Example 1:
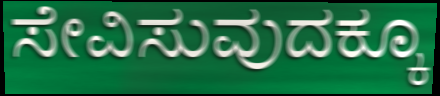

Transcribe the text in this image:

ಸೇವಿಸುವುದಕ್ಕೂ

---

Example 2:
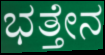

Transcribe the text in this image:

ಭತ್ತೇನ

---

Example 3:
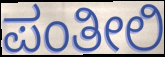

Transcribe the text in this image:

ಪಂತೀಲಿ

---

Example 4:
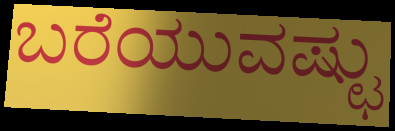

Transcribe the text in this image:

ಬರೆಯುವಷ್ಟು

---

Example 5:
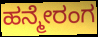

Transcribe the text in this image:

ಹನ್ಮೇರಂಗ